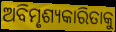
ଅବିମୃଶ୍ୟକାରିତାକୁ